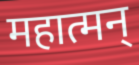
महात्मन्